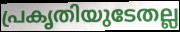
പ്രകൃതിയുടേതല്ല